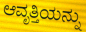
ಆವೃತ್ತಿಯನ್ನು